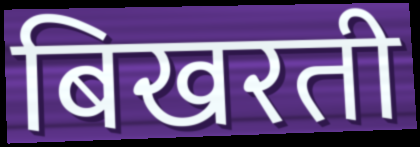
बिखरती